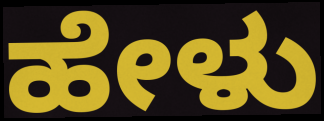
ಹೇಳು